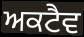
ਅਕਟੈਵ